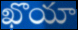
ఖొయా